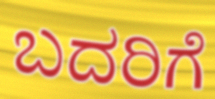
ಬದರಿಗೆ